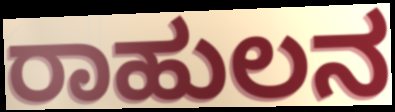
ರಾಹುಲನ